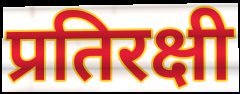
प्रतिरक्षी